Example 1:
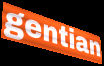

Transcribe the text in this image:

gentian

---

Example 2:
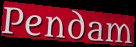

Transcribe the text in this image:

Pendam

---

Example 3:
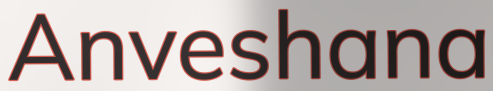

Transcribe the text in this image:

Anveshana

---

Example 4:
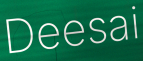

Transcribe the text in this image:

Deesai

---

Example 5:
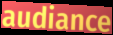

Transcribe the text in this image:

audiance